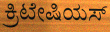
ಕ್ರಿಟೇಷಿಯಸ್